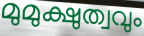
മുമുക്ഷുത്വവും